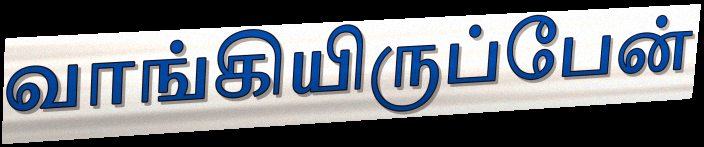
வாங்கியிருப்பேன்